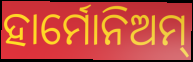
ହାର୍ମୋନିଅମ୍